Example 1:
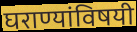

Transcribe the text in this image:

घराण्यांविषयी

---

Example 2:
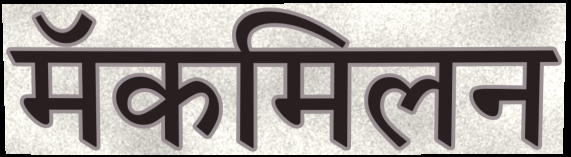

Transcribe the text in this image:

मॅकमिलन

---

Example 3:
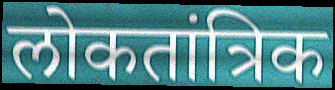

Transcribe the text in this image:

लोकतांत्रिक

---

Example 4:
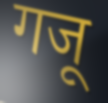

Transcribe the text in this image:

गजू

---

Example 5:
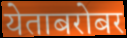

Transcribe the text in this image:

येताबरोबर